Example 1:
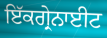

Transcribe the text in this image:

ਇੱਕਗ੍ਰੇਨਾਈਟ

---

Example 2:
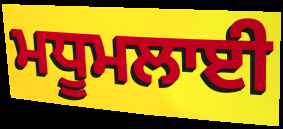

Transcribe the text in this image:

ਮਧੂਮਲਾਈ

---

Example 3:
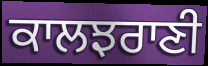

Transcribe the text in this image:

ਕਾਲਝਰਾਣੀ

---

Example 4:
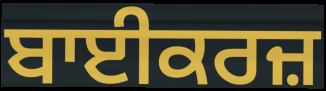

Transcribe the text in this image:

ਬਾਈਕਰਜ਼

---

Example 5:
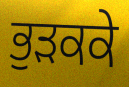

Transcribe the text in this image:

ਭੁੜਕਕੇ